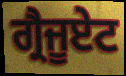
ਗ੍ਰੈਜੂਏਟ